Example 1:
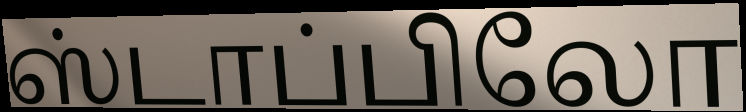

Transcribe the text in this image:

ஸ்டாப்பிலோ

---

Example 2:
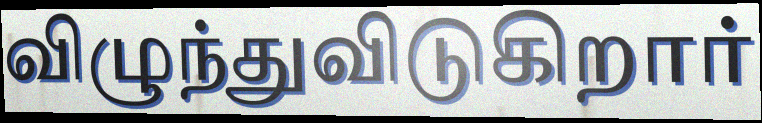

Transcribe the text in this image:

விழுந்துவிடுகிறார்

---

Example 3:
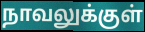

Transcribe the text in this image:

நாவலுக்குள்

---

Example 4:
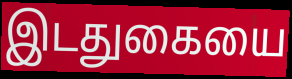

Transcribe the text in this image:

இடதுகையை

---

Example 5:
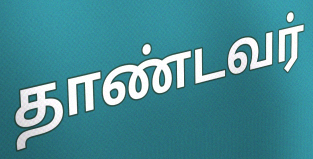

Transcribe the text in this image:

தாண்டவர்